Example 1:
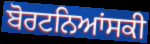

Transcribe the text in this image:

ਬੋਰਟਨਿਆਂਸਕੀ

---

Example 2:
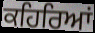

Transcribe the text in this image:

ਕਹਿਰਿਆਂ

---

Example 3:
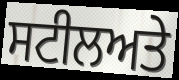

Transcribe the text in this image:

ਸਟੀਲਅਤੇ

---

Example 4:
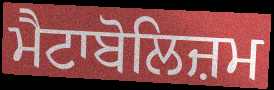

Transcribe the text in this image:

ਮੈਟਾਬੋਲਿਜ਼ਮ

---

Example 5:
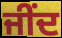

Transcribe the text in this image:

ਜੀਂਦ